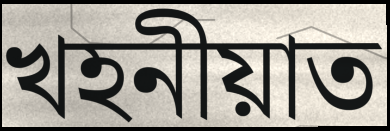
খহনীয়াত